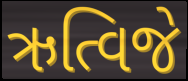
ઋત્વિજે